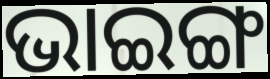
ଭାଇଙ୍ଗ